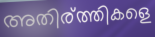
അതിര്ത്തികളെ